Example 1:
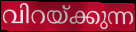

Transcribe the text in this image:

വിറയ്ക്കുന്ന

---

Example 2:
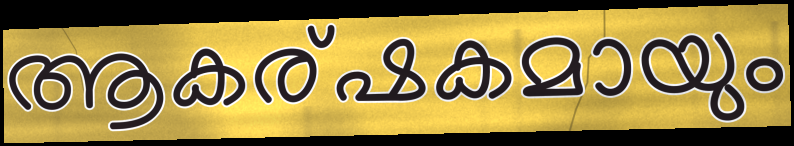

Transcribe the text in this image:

ആകര്ഷകമായും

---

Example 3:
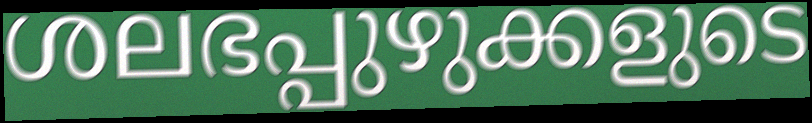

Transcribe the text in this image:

ശലഭപ്പുഴുക്കളുടെ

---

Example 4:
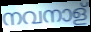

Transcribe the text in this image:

നവനാള്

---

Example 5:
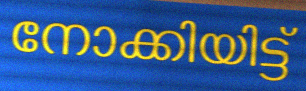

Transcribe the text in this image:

നോക്കിയിട്ട്